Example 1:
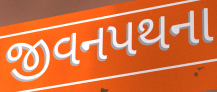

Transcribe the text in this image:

જીવનપથના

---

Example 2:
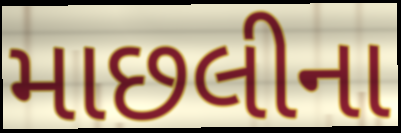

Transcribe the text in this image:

માછલીના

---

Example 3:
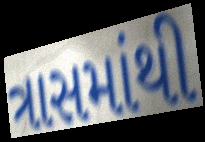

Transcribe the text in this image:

ત્રાસમાંથી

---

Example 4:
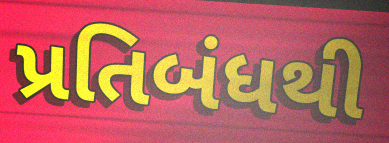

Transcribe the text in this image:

પ્રતિબંધથી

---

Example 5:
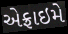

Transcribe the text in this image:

એફ્રાઇમે